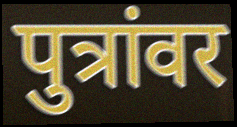
पुत्रांवर